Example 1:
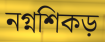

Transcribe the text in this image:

নগ্নশিকড়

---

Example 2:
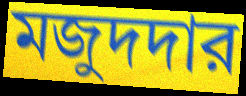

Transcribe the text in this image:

মজুদদার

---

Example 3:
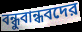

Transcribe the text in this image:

বন্ধুবান্ধবদের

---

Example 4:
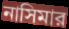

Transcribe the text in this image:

নাসিমার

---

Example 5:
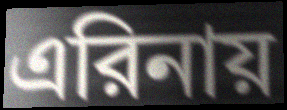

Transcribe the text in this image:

এরিনায়